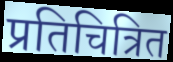
प्रतिचित्रित